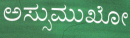
ಅಸ್ಸುಮುಖೋ